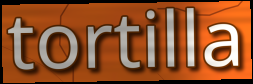
tortilla